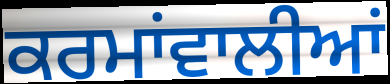
ਕਰਮਾਂਵਾਲੀਆਂ